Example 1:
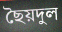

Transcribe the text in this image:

ছৈয়দুল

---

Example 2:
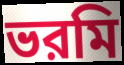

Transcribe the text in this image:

ভরমি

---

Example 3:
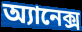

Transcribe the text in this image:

অ্যানেক্স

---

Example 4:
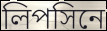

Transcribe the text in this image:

লিপসিনে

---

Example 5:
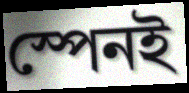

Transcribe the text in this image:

স্পেনই